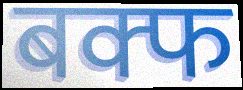
बक्फ